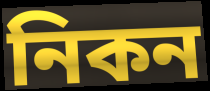
নিকন